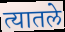
त्‍यातले